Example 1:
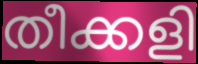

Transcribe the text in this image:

തീക്കളി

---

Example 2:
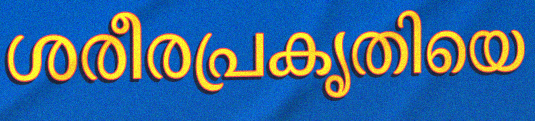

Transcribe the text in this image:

ശരീരപ്രകൃതിയെ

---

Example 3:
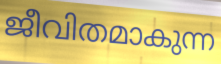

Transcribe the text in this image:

ജീവിതമാകുന്ന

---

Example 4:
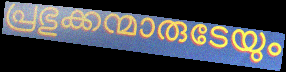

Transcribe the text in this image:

പ്രഭുക്കന്മാരുടേയും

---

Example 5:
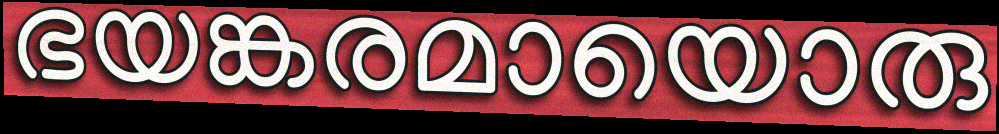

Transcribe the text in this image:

ഭയങ്കരമായൊരു